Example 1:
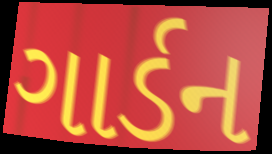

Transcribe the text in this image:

ગાર્ડન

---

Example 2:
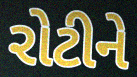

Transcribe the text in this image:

રોટીને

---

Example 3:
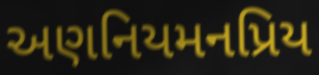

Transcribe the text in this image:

અણનિયમનપ્રિય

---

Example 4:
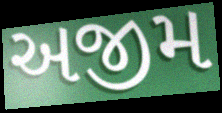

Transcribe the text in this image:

અજીમ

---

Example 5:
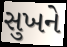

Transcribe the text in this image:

સુખને